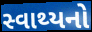
સ્વાથ્યનો